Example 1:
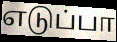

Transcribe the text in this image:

எடுப்பா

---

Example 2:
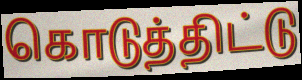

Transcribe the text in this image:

கொடுத்திட்டு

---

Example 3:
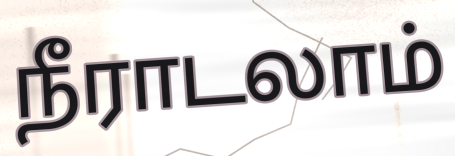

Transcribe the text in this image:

நீராடலாம்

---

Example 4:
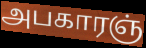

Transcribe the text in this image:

அபகாரஞ்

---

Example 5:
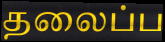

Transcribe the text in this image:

தலைப்ப